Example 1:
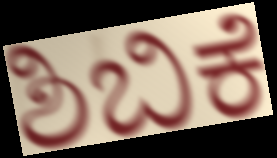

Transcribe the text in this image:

ಶಿಬಿಕೆ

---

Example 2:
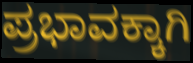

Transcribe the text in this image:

ಪ್ರಭಾವಕ್ಕಾಗಿ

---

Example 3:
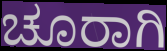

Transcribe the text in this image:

ಚೂರಾಗಿ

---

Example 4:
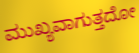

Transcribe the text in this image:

ಮುಖ್ಯವಾಗುತ್ತದೋ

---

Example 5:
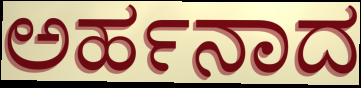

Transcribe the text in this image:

ಅರ್ಹನಾದ